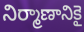
నిర్మాణానికై